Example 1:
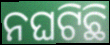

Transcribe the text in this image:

ନଘଟିଛି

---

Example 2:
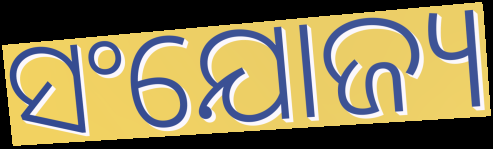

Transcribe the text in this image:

ସଂଯୋଜ୍ୟ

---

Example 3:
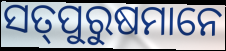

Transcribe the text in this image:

ସତ୍‌ପୁରୁଷମାନେ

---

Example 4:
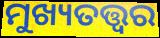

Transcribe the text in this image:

ମୁଖ୍ୟତତ୍ତ୍ୱର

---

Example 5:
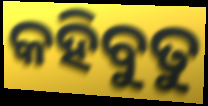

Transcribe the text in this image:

କହିବୁତୁ